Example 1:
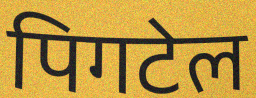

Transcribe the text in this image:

पिगटेल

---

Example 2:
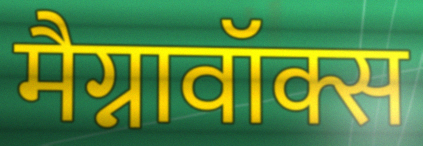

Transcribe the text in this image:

मैग्नावॉक्स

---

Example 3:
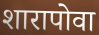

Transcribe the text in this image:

शारापोवा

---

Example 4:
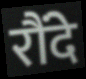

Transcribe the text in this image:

रौंदे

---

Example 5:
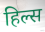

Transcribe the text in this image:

हिल्स